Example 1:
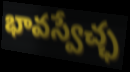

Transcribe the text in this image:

భావస్వేచ్ఛ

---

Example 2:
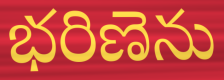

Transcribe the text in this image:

భరిణెను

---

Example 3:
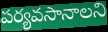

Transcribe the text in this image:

పర్యవసానాలని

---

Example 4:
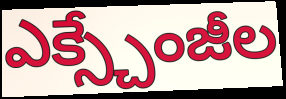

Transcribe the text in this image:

ఎక్స్చేంజీల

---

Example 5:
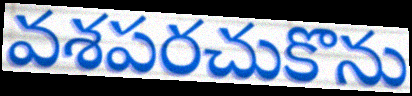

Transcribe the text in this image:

వశపరచుకొను